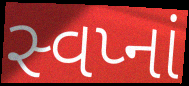
સ્વપ્નાં